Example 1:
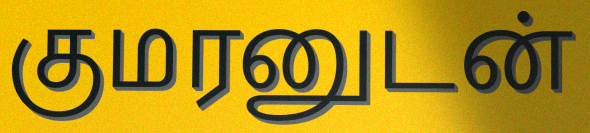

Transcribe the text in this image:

குமரனுடன்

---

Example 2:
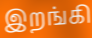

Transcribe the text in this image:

இறங்கி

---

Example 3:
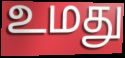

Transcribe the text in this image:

உமது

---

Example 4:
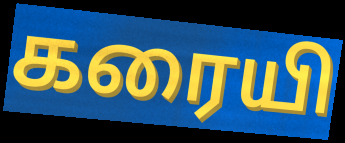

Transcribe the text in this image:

கரையி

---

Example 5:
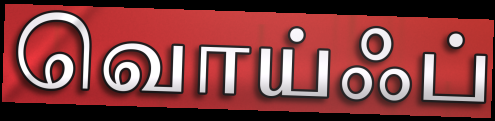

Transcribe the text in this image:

வொய்ஃப்